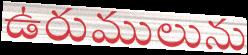
ఉరుములును